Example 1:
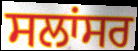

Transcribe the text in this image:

ਸਲਾਂਸਰ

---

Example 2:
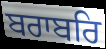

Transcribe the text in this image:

ਬਰਾਬਰਿ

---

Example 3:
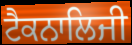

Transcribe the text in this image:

ਟੈਕਨਾਲਿਜੀ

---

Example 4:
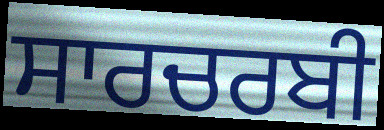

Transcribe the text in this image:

ਸਾਰਚਰਬੀ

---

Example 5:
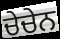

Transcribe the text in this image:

ਚੇਚੇਨ